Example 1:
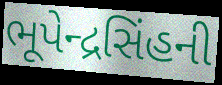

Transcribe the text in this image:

ભૂપેન્દ્રસિંહની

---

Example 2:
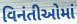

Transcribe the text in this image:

વિનંતીઓમાં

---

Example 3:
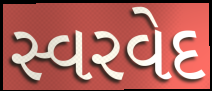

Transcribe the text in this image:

સ્વરવેદ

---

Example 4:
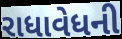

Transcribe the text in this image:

રાધાવેધની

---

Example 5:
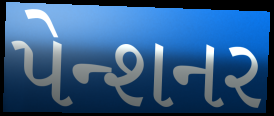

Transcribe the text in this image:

પેન્શનર